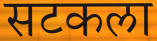
सटकला